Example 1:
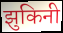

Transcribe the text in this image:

झुकिनी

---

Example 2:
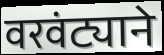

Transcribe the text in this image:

वरवंट्याने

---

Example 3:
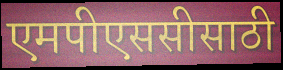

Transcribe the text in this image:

एमपीएससीसाठी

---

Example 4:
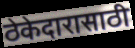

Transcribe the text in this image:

ठेकेदारासाठी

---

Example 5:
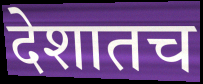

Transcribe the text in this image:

देशातच